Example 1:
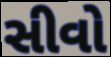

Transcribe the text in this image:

સીવો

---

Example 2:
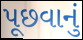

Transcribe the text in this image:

પૂછવાનું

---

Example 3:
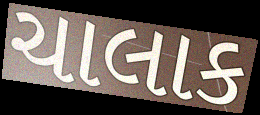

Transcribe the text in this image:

ચાલાક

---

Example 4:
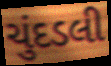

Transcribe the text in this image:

ચુંદડલી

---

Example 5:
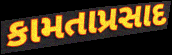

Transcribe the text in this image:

કામતાપ્રસાદ